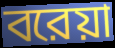
বরেয়া